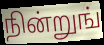
நின்றுங்